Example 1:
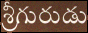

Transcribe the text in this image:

శ్రీగురుడు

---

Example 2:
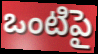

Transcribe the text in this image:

ఒంటిపై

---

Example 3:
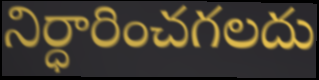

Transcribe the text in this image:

నిర్ధారించగలదు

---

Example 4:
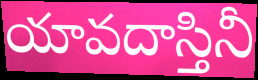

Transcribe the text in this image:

యావదాస్తినీ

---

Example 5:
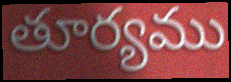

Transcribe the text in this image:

తూర్యము